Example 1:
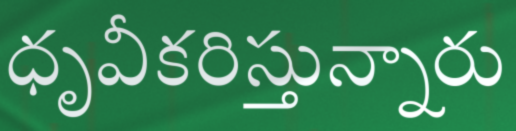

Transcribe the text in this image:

ధృవీకరిస్తున్నారు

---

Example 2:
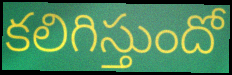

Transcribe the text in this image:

కలిగిస్తుందో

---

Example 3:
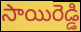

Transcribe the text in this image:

సాయిరెడ్డి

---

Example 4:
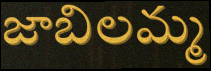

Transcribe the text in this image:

జాబిలమ్మ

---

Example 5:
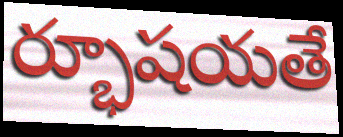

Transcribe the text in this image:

ర్భూషయతే